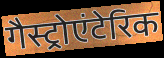
गैस्ट्रोएंटेरिक